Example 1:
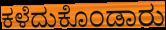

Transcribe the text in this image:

ಕಳೆದುಕೊಂಡಾರು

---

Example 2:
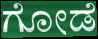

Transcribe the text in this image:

ಗೋಡೆ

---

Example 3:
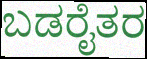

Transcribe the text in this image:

ಬಡರೈತರ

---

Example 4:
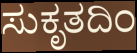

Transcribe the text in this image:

ಸುಕೃತದಿಂ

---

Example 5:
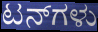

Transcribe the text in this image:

ಟನ್‌ಗಳು